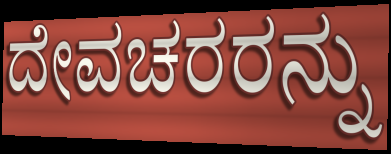
ದೇವಚರರನ್ನು